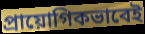
প্রায়োগিকভাবেই